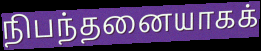
நிபந்தனையாகக்